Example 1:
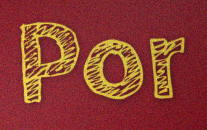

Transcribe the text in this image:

Por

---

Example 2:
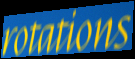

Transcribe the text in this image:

rotations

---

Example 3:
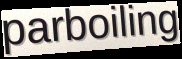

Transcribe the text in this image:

parboiling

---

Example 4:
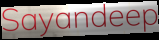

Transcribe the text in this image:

Sayandeep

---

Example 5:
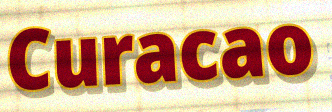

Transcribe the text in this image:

Curacao